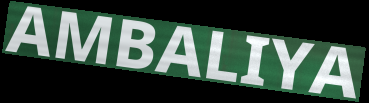
AMBALIYA